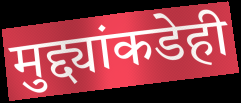
मुद्द्यांकडेही